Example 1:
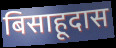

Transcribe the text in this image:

बिसाहूदास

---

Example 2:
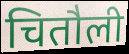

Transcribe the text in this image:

चितौली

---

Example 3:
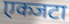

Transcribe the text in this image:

एकजटा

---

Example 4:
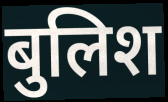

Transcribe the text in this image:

बुलिश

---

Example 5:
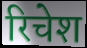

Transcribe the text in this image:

रिचेश